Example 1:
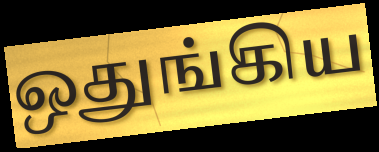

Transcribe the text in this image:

ஒதுங்கிய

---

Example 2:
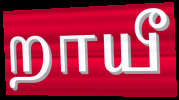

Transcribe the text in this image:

றாயீ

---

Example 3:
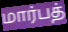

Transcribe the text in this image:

மார்பத்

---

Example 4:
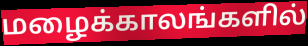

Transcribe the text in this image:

மழைக்காலங்களில்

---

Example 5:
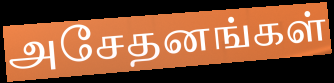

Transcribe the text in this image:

அசேதனங்கள்